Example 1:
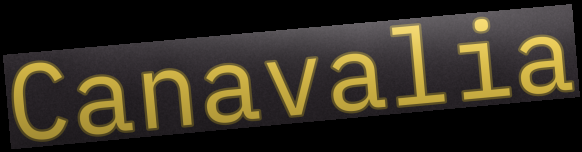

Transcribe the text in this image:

Canavalia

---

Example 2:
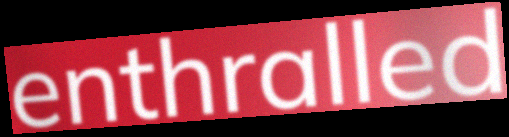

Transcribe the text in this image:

enthralled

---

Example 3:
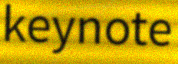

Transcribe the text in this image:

keynote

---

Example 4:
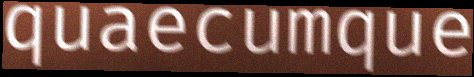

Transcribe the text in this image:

quaecumque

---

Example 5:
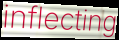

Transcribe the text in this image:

inflecting